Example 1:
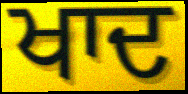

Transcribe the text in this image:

ਖਾਦ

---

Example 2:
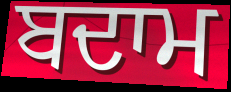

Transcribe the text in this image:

ਬਦਾਮ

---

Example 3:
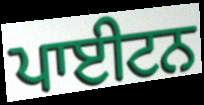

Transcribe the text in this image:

ਪਾਈਟਨ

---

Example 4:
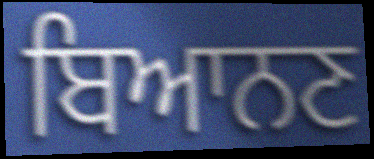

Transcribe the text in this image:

ਬਿਆਨਣ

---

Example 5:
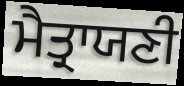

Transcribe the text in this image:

ਮੈਤ੍ਰਾਯਣੀ